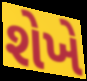
શેખે